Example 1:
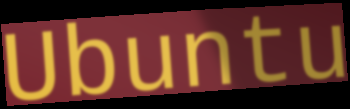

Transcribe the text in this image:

Ubuntu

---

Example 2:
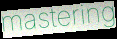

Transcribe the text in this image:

mastering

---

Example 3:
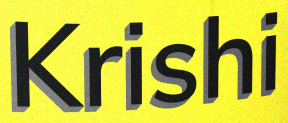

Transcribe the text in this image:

Krishi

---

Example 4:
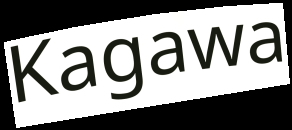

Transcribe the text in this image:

Kagawa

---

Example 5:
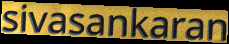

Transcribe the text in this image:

sivasankaran